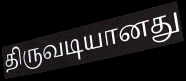
திருவடியானது